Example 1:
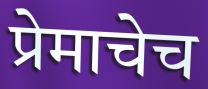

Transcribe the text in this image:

प्रेमाचेच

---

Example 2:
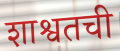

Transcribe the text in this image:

शाश्वतची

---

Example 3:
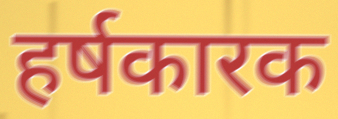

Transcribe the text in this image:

हर्षकारक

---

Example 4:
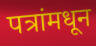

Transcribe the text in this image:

पत्रांमधून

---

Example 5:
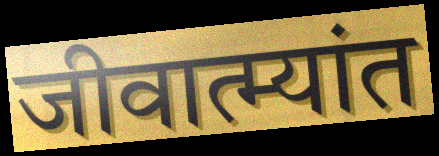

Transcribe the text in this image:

जीवात्म्यांत